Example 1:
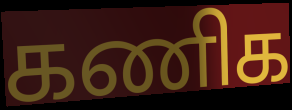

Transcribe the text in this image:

கணிக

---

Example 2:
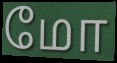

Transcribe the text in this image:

மோ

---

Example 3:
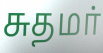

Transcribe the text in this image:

சுதமர்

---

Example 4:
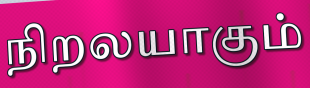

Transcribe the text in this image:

நிறலயாகும்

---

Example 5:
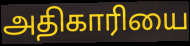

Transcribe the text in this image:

அதிகாரியை